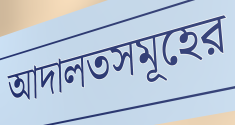
আদালতসমূহের